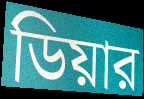
ডিয়ার